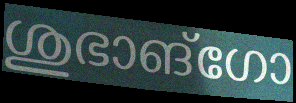
ശുഭാങ്ഗോ